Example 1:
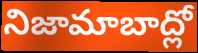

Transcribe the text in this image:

నిజామాబాద్లో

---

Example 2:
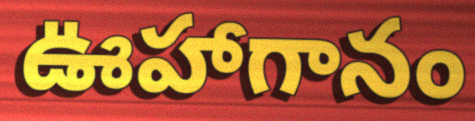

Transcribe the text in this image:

ఊహాగానం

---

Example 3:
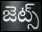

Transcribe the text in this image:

జెట్స్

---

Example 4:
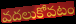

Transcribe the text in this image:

వదలుకోవటం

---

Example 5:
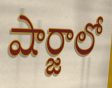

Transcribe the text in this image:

షార్జాలో